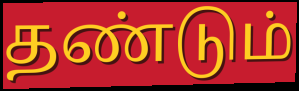
தண்டும்